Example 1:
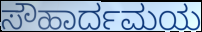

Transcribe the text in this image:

ಸೌಹಾರ್ದಮಯ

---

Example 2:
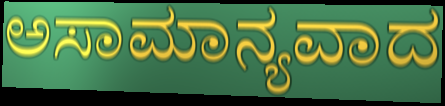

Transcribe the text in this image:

ಅಸಾಮಾನ್ಯವಾದ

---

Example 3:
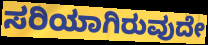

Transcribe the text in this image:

ಸರಿಯಾಗಿರುವುದೇ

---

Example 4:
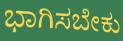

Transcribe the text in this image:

ಭಾಗಿಸಬೇಕು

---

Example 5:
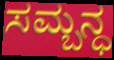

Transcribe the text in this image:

ಸಮ್ಬನ್ಧ